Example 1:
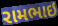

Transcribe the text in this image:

રામભાઇ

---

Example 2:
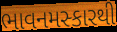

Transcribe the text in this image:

ભાવનમસ્કારથી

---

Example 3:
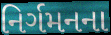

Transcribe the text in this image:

નિર્ગમનના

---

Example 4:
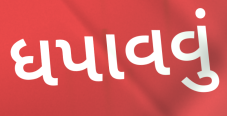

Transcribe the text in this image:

ધપાવવું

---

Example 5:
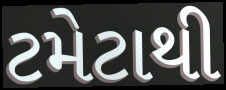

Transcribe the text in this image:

ટમેટાથી